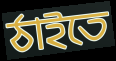
ঠাইতে